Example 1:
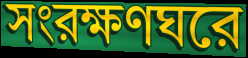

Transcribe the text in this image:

সংরক্ষণঘরে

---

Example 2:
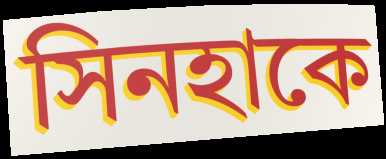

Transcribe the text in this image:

সিনহাকে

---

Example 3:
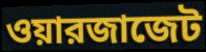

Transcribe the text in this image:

ওয়ারজাজেট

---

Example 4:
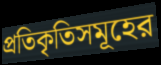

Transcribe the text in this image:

প্রতিকৃতিসমূহের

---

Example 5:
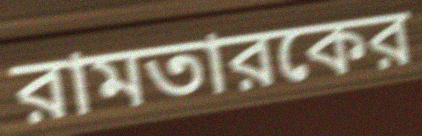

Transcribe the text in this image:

রামতারকের